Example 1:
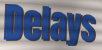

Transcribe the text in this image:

Delays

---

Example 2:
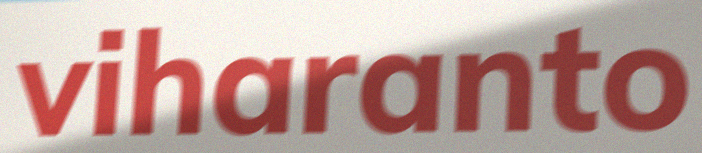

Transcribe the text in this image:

viharanto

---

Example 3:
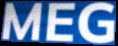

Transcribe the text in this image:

MEG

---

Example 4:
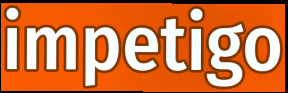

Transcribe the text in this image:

impetigo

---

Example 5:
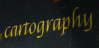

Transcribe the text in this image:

cartography